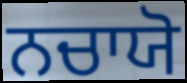
ਨਚਾਯੋ